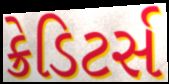
ક્રેડિટર્સ